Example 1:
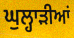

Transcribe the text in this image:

ਘੁਲ੍ਹਾੜੀਆਂ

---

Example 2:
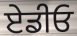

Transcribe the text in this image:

ਏਡੀਓ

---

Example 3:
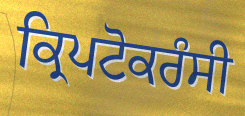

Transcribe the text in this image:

ਕ੍ਰਿਪਟੋਕਰੰਸੀ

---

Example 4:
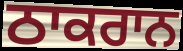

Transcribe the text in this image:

ਠਾਕਰਾਨ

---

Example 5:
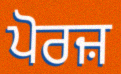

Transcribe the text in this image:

ਪੋਰਜ਼